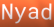
Nyad